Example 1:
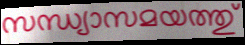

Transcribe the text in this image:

സന്ധ്യാസമയത്തു്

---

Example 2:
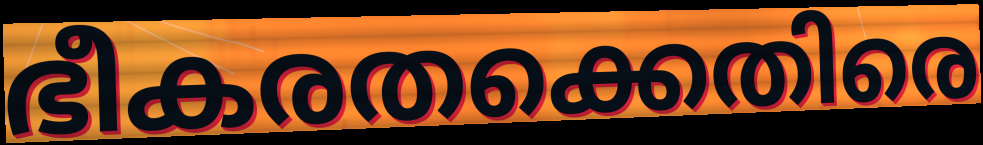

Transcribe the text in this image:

ഭീകരതക്കെതിരെ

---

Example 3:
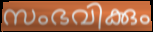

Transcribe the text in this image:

സംഭവിക്കും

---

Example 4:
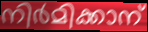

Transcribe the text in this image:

നിർമിക്കാന്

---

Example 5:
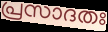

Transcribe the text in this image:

പ്രസാദതഃ